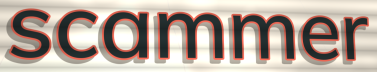
scammer